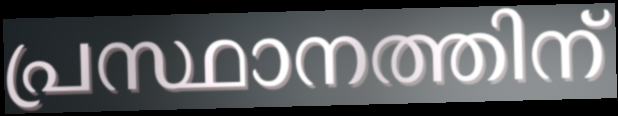
പ്രസ്ഥാനത്തിന്